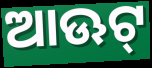
ଆଊଟ୍